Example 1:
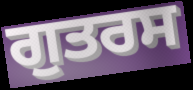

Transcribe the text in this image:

ਗੁਤਰਸ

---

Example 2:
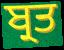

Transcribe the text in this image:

ਬ੍ਰਤ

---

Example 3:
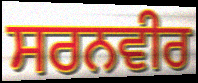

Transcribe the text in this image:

ਸਰਨਵੀਰ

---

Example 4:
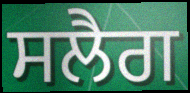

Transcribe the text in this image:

ਸਲੈਗ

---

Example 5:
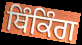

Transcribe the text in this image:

ਥਿੰਕਿੰਗ